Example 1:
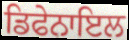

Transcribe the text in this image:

ਡਿਫੇਨਾਇਲ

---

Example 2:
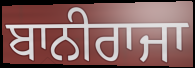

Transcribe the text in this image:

ਬਾਨੀਰਾਜਾ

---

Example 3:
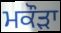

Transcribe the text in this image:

ਮਕੌੜਾ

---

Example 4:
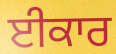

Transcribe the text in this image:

ਈਕਾਰ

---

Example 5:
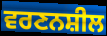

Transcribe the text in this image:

ਵਰਣਨਸ਼ੀਲ